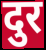
दुर